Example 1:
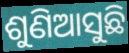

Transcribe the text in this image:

ଶୁଣିଆସୁଛି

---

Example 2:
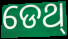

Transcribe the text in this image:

ଡେଥ୍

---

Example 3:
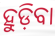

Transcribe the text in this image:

ହୁଡ଼ିବା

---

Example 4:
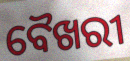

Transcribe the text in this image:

ବୈଖରୀ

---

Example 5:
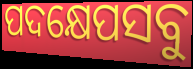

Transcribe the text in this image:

ପଦକ୍ଷେପସବୁ